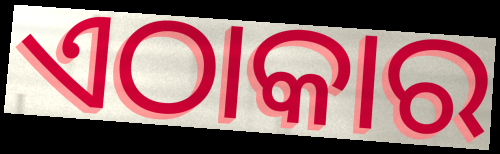
ଏଠାକାର